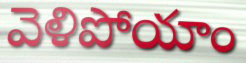
వెళిపోయాం